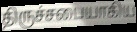
திருச்சபையாகிய